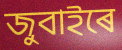
জুবাইৰে